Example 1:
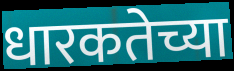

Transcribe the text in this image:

धारकतेच्या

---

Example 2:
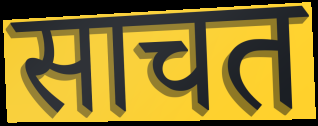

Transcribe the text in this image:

साचत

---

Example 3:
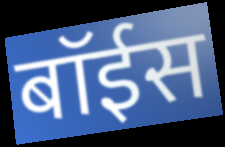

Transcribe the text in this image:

बॉईस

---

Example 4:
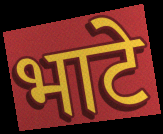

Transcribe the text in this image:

भाटे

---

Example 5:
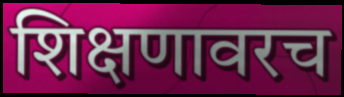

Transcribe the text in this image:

शिक्षणावरच